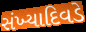
સંખ્યાદિવડે